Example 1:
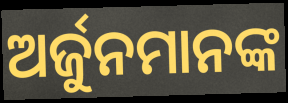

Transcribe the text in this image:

ଅର୍ଜୁନମାନଙ୍କ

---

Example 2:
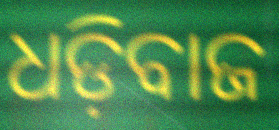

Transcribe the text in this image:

ଧଡ଼ିବାଜ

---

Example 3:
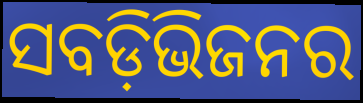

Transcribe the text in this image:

ସବଡ଼ିଭିଜନର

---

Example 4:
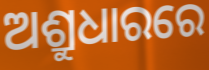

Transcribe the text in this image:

ଅଶ୍ରୁଧାରରେ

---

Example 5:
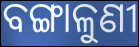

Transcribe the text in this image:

ବଙ୍ଗାଳୁଣୀ